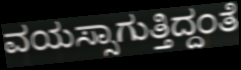
ವಯಸ್ಸಾಗುತ್ತಿದ್ದಂತೆ